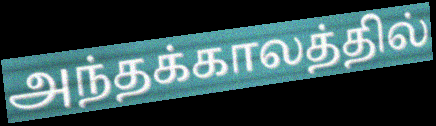
அந்தக்காலத்தில்